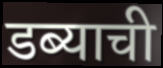
डब्याची